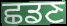
ਛਡਣ